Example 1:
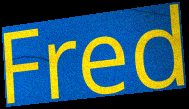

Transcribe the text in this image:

Fred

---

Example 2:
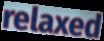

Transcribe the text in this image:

relaxed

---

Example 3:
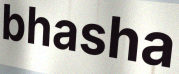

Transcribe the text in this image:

bhasha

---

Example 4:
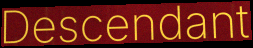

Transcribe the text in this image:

Descendant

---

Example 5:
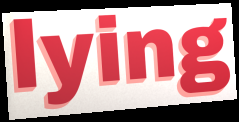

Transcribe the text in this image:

lying